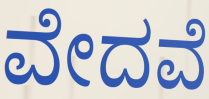
ವೇದವೆ